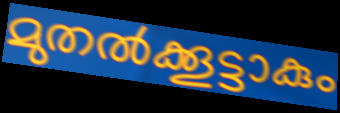
മുതൽക്കൂട്ടാകും